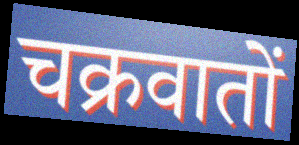
चक्रवातों